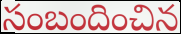
సంబందించిన